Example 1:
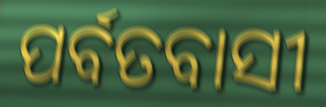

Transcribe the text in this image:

ପର୍ବତବାସୀ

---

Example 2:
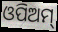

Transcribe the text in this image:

ଓପିଅମ୍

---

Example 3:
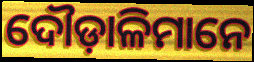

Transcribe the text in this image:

ଦୌଡ଼ାଳିମାନେ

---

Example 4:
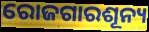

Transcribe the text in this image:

ରୋଜଗାରଶୂନ୍ୟ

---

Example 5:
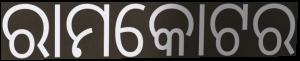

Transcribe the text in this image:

ରାମକୋଟର